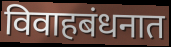
विवाहबंधनात